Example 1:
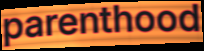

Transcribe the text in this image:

parenthood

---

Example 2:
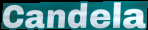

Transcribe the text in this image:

Candela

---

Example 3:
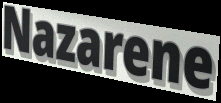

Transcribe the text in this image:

Nazarene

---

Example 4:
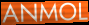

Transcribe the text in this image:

ANMOL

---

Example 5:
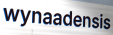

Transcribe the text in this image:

wynaadensis